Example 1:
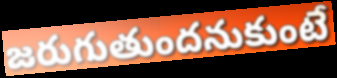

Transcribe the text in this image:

జరుగుతుందనుకుంటే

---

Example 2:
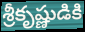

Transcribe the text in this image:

శ్రీకృష్ణుడికి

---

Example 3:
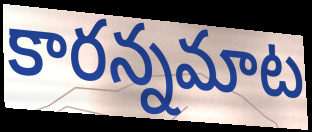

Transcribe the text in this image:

కారన్నమాట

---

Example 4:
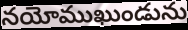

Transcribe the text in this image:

నయోముఖుండును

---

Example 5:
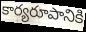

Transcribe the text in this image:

కార్యరూపానికి